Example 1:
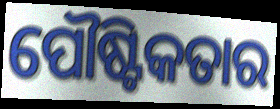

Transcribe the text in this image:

ପୌଷ୍ଟିକତାର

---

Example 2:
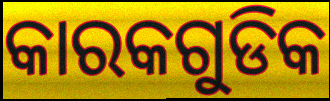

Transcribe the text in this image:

କାରକଗୁଡିକ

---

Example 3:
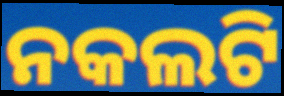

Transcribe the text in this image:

ନକଲଟି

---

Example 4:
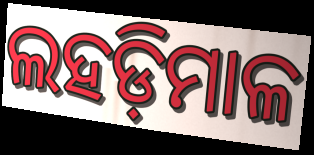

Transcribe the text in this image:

ଲହଡ଼ିମାଳ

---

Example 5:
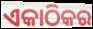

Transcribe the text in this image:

ଏକାଠିକର